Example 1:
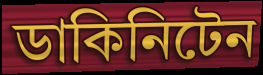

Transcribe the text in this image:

ডাকিনিটেন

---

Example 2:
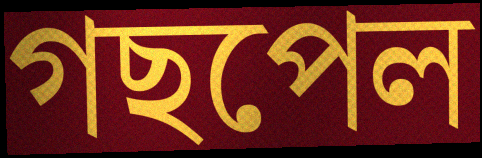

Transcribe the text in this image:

গছপেল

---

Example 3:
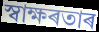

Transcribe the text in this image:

স্বাক্ষৰতাৰ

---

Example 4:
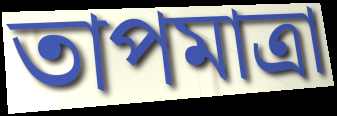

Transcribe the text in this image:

তাপমাত্ৰা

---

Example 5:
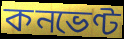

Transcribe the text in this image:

কনভেণ্ট